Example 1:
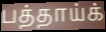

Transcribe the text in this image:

பத்தாய்க்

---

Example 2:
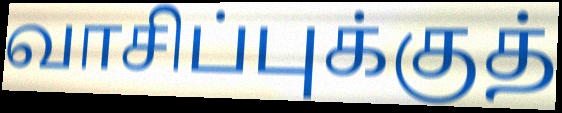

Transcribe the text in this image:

வாசிப்புக்குத்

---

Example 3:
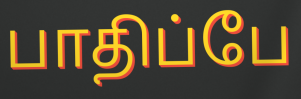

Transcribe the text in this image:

பாதிப்பே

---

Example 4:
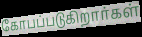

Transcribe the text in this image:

கோபப்படுகிறார்கள்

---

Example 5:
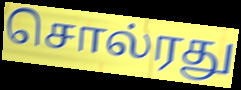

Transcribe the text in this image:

சொல்ரது